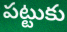
పట్టుకు